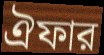
ঐফার